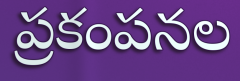
ప్రకంపనల